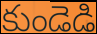
కుండెడి